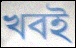
খবই